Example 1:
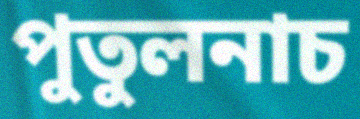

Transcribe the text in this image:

পুতুলনাচ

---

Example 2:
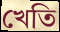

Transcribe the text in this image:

খেতি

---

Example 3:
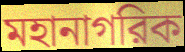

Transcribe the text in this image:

মহানাগরিক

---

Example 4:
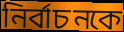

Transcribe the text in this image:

নির্বাচনকে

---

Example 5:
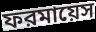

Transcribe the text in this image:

ফরমায়েস